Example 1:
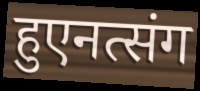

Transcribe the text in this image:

हुएनत्संग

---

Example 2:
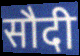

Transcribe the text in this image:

सौदी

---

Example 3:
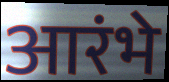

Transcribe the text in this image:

आरंभे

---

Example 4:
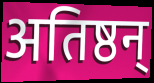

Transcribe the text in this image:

अतिष्ठन्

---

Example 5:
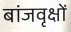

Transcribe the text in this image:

बांजवृक्षों